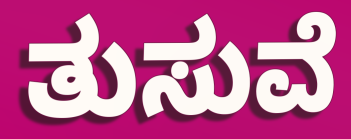
ತುಸುವೆ